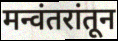
मन्वंतरांतून